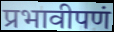
प्रभावीपणं